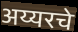
अय्यरचे